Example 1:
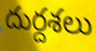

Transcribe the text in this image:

దుర్దశలు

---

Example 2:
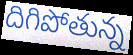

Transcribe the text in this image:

దిగిపోతున్న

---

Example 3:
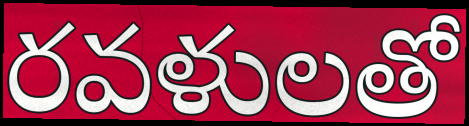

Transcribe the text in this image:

రవళులతో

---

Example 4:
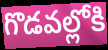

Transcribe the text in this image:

గొడవల్లోకి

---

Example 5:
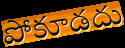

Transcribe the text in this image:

పోకూడదు